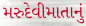
મરુદેવીમાતાનું